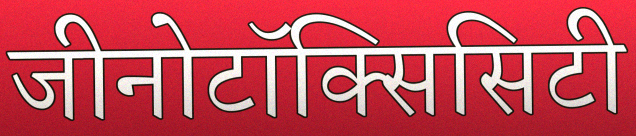
जीनोटॉक्सिसिटी